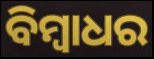
ବିମ୍ବାଧର